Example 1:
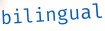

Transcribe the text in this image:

bilingual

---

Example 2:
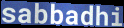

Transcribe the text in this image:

sabbadhi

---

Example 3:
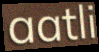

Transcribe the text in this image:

aatli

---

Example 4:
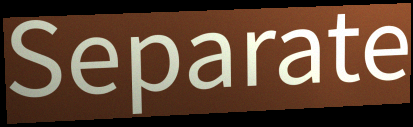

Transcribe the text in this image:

Separate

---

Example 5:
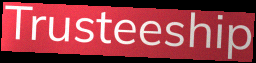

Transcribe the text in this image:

Trusteeship